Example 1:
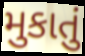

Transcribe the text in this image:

મુકાતું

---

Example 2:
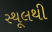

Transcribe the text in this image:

સ્થૂલથી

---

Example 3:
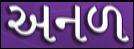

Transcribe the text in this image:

અનળ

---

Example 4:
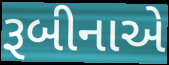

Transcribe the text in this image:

રૂબીનાએ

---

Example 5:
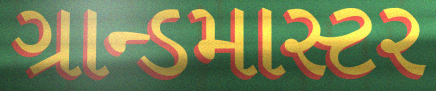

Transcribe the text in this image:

ગ્રાન્ડમાસ્ટર